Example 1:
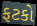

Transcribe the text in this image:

ફટકો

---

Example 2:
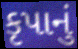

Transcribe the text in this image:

કૃપાનું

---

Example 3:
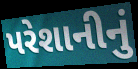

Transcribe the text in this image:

પરેશાનીનું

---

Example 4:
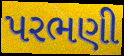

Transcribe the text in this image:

પરભણી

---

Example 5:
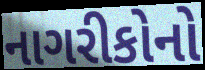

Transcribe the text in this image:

નાગરીકોનો